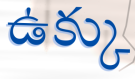
ఉక్కు